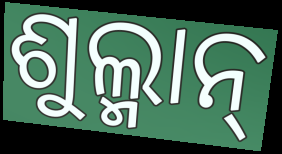
ଶୁଲ୍ମାନ୍